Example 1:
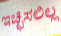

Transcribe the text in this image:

ಇಚ್ಛಿಸಲಿಲ್ಲ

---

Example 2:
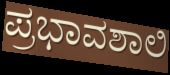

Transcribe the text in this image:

ಪ್ರಭಾವಶಾಲಿ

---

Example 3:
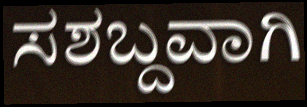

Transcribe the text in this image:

ಸಶಬ್ದವಾಗಿ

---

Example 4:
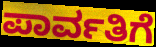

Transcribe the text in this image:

ಪಾರ್ವತಿಗೆ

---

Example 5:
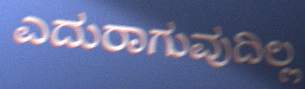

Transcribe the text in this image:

ಎದುರಾಗುವುದಿಲ್ಲ